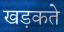
खड़कते